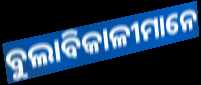
ବୁଲାବିକାଳୀମାନେ